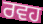
ਰਵਹ